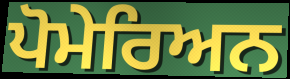
ਪੋਮੇਰਿਅਨ